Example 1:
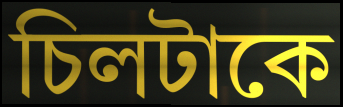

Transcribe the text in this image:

চিলটাকে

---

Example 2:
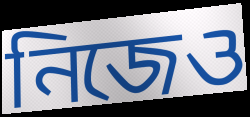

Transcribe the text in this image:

নিজেও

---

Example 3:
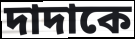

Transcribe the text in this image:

দাদাকে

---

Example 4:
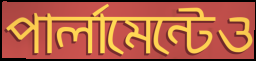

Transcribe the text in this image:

পার্লামেন্টেও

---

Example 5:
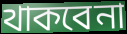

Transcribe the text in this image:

থাকবেনা